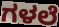
ಗಳಲೆ